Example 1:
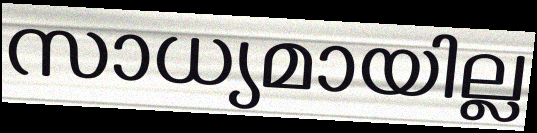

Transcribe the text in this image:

സാധ്യമായില്ല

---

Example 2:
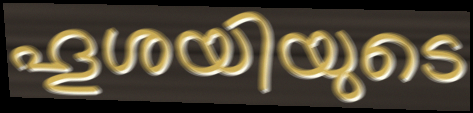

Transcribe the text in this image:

ഹൂശയിയുടെ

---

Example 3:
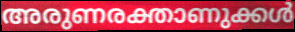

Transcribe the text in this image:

അരുണരക്താണുക്കൾ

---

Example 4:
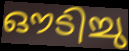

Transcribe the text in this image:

ഔടിച്ചു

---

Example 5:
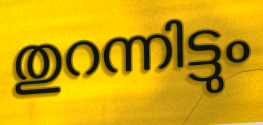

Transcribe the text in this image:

തുറന്നിട്ടും